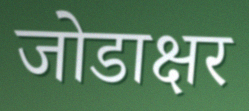
जोडाक्षर